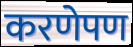
करणेपण